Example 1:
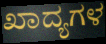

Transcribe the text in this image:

ಖಾದ್ಯಗಳ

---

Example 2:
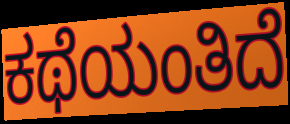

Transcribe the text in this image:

ಕಥೆಯಂತಿದೆ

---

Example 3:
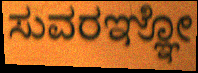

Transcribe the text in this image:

ಸುವರಞ್ಞೋ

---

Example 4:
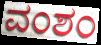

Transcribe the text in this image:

ವಂಶಂ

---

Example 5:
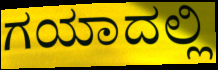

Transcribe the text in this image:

ಗಯಾದಲ್ಲಿ